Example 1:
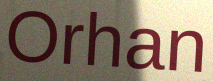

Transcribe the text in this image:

Orhan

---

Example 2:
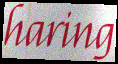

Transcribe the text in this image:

haring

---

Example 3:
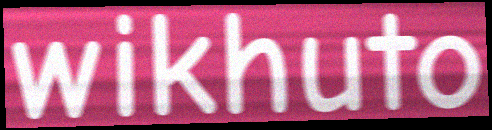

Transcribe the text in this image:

wikhuto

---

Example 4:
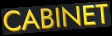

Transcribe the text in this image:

CABINET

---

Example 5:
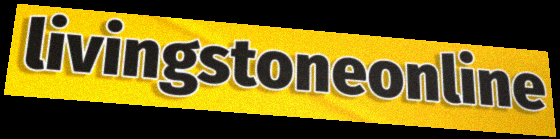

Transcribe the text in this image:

livingstoneonline